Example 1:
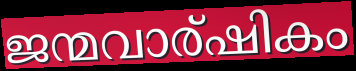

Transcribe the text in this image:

ജന്മവാര്ഷികം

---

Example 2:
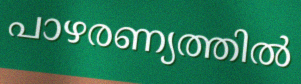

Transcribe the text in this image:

പാഴരണ്യത്തിൽ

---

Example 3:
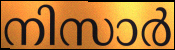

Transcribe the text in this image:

നിസാർ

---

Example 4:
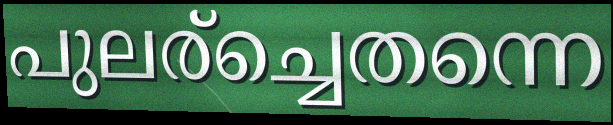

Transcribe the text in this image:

പുലര്ച്ചെതന്നെ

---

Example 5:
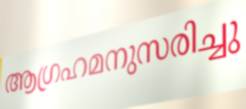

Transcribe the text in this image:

ആഗ്രഹമനുസരിച്ചു